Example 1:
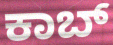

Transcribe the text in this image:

ಕಾಬ್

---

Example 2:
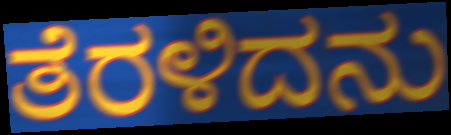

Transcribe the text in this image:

ತೆರಳಿದನು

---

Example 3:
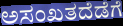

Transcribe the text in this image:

ಅಸಂಖತದೆಡೆಗೆ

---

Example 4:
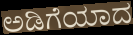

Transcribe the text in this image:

ಅಡಿಗೆಯಾದ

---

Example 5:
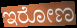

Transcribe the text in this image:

ಇರೋಣ